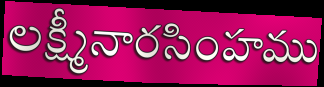
లక్ష్మీనారసింహము